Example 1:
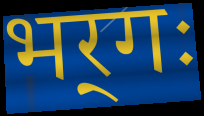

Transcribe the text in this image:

भर्गः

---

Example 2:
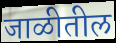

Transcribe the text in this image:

जाळीतील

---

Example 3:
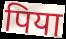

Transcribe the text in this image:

पिया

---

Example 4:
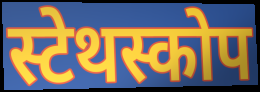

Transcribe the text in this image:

स्टेथस्कोप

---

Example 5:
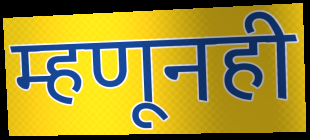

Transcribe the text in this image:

म्‍हणूनही